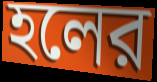
হলের